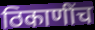
ठिकाणींच